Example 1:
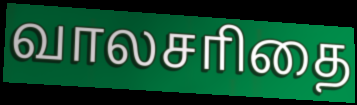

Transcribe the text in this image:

வாலசரிதை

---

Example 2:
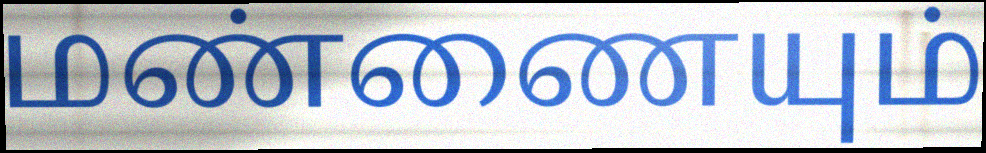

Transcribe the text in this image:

மண்ணையும்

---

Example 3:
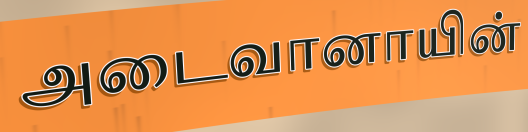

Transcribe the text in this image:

அடைவானாயின்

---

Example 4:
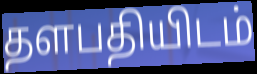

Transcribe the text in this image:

தளபதியிடம்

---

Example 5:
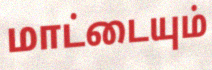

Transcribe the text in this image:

மாட்டையும்